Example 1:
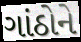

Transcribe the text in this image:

ગાંઠોને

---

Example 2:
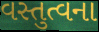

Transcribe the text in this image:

વસ્તુત્વના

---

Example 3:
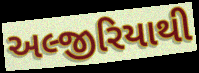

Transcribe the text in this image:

અલ્જીરિયાથી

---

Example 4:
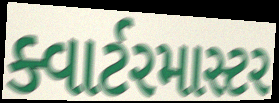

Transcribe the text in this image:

ક્વાર્ટરમાસ્ટર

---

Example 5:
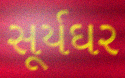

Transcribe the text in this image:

સૂર્યઘર